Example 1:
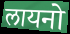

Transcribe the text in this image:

लायनो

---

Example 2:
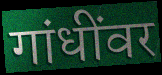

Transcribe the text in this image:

गांधींवर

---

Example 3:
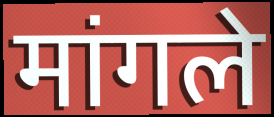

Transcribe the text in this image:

मांगले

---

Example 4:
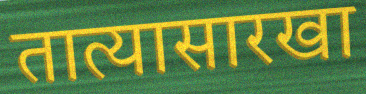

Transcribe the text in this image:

तात्यासारखा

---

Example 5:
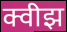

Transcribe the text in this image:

क्वीझ